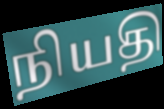
நியதி